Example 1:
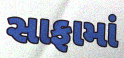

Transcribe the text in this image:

સાફામાં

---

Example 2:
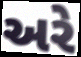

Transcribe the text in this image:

અરે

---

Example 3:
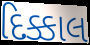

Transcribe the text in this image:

દિક્કાલ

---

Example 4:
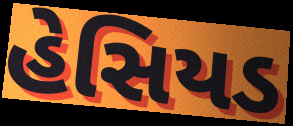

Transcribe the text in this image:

હેસિયડ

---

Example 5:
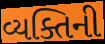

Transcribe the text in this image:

વ્યક્તિની